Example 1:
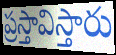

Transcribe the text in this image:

ప్రస్తావిస్తారు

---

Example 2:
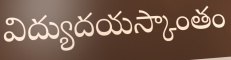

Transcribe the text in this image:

విద్యుదయస్కాంతం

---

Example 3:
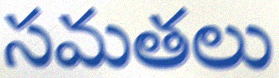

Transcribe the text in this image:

సమతలు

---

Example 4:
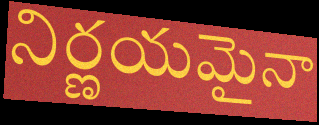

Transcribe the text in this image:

నిర్ణయమైనా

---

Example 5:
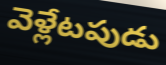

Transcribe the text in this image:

వెళ్లేటపుడు